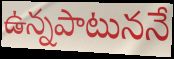
ఉన్నపాటుననే